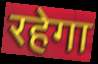
रहेगा